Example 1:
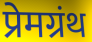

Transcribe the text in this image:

प्रेमग्रंथ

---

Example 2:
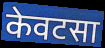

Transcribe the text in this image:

केवटसा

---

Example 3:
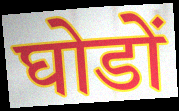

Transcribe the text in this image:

घोडों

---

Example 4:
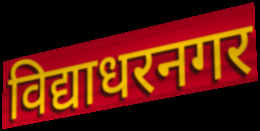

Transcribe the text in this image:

विद्याधरनगर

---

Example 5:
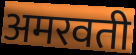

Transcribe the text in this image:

अमरवती